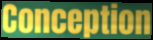
Conception